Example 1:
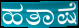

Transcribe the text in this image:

ಹತಾಷೆ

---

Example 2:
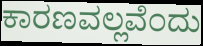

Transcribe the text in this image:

ಕಾರಣವಲ್ಲವೆಂದು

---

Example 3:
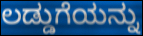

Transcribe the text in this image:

ಲಡ್ಡುಗೆಯನ್ನು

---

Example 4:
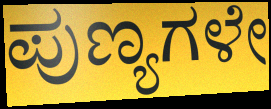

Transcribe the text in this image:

ಪುಣ್ಯಗಳೇ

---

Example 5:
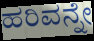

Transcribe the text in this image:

ಹರಿವನ್ನೇ